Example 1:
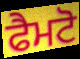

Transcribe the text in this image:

ਫੈਮਟੋ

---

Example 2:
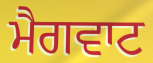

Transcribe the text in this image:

ਮੈਗਵਾਟ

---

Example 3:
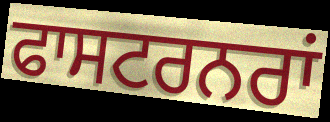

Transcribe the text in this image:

ਫਾਸਟਰਨਰਾਂ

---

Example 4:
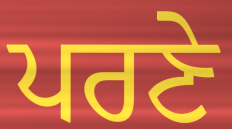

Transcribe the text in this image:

ਪਰਣੇ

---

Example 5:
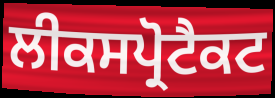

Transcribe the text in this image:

ਲੀਕਸਪ੍ਰੋਟੈਕਟ